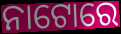
ନାଟୋରେ